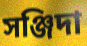
সঞ্জিদা